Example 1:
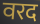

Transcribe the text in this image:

वरद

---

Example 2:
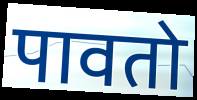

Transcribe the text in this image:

पावतो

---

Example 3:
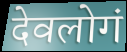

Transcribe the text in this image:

देवलोगं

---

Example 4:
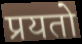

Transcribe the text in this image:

प्रयतो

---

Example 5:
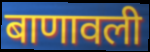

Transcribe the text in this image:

बाणावली